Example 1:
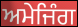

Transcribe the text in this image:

ਅਮੇਜਿੰਗ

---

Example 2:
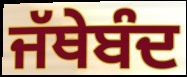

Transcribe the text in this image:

ਜੱਥੇਬੰਦ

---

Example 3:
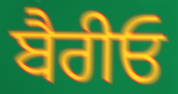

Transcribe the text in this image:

ਬੈਰੀਓ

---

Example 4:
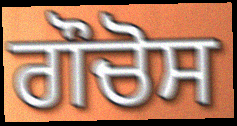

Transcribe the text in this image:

ਗੌਚੋਸ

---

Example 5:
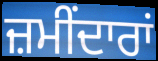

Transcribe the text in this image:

ਜ਼ਮੀਂਦਾਰਾਂ